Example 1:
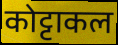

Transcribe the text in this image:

कोट्टाकल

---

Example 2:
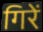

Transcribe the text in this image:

गिरें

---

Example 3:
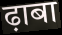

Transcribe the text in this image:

ढ़ाबा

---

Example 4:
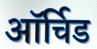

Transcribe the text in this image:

ऑर्चिड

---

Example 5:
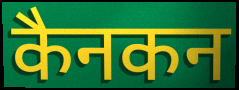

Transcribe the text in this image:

कैनकन